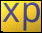
xp